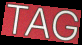
TAG